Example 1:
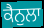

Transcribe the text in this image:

ਕੈਨੁਲਾ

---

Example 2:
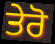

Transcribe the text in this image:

ਤੇਰੋ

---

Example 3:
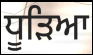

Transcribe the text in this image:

ਧੂੜਿਆ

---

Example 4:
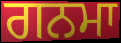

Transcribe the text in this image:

ਗਨਮਾ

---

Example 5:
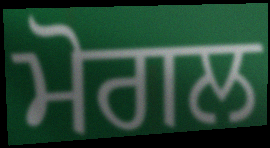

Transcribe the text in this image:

ਮੋਗਲ